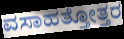
ವಸಾಹತ್ತೋತ್ತರ